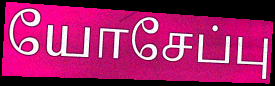
யோசேப்பு